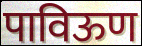
पाविऊण